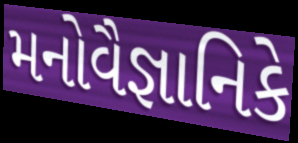
મનોવૈજ્ઞાનિકે